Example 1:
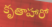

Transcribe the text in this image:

కృతాహారో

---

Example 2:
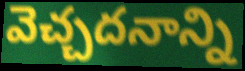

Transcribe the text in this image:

వెచ్చదనాన్ని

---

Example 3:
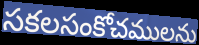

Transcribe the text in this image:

సకలసంకోచములను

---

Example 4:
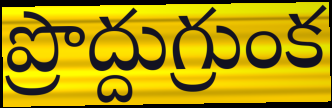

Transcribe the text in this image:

ప్రొద్దుగ్రుంక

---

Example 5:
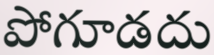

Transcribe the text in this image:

పోగూడదు